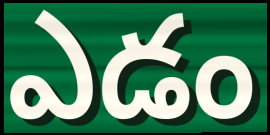
ఎడం